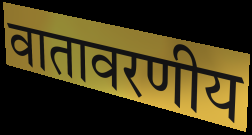
वातावरणीय